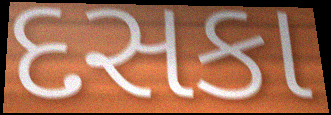
દસકા